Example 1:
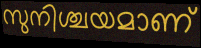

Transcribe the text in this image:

സുനിശ്ചയമാണ്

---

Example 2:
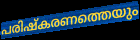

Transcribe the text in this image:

പരിഷ്കരണത്തെയും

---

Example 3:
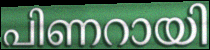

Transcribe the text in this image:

പിണറായി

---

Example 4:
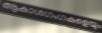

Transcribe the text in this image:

ആകാശഗംഗകളെയും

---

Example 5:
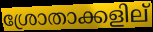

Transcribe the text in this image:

ശ്രോതാക്കളില്